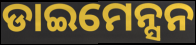
ଡାଇମେନ୍ସନ